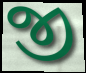
જી